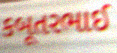
કબૂતરભાઈ